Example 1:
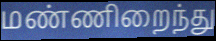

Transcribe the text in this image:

மண்ணிறைந்து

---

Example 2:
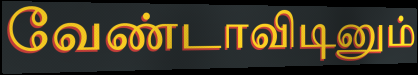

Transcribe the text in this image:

வேண்டாவிடினும்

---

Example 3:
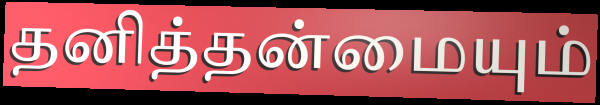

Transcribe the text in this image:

தனித்தன்மையும்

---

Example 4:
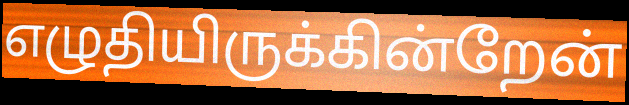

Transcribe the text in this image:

எழுதியிருக்கின்றேன்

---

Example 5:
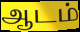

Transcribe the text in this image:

ஆடம்